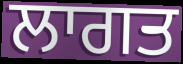
ਲਾਗਤ